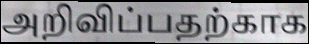
அறிவிப்பதற்காக